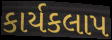
કાર્યકલાપ